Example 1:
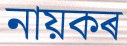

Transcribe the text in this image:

নায়কৰ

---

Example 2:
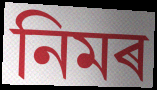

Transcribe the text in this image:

নিমৰ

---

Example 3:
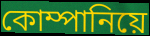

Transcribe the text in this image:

কোম্পানিয়ে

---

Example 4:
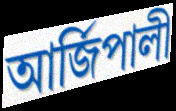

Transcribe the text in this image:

আৰ্জিপালী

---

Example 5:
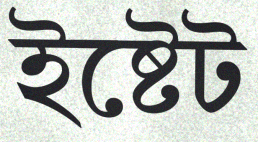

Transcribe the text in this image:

ইষ্টেট